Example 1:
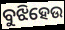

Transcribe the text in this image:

ବୁଝିହେଉ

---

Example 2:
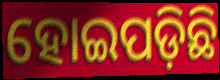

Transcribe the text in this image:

ହୋଇପଡ଼ିଛି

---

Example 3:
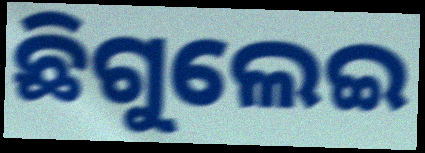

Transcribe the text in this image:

ଛିଗୁଲେଇ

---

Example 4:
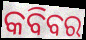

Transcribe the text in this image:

କବିବର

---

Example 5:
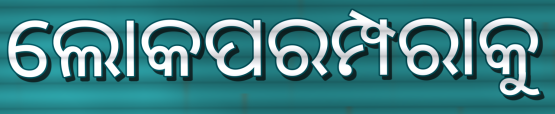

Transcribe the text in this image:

ଲୋକପରମ୍ପରାକୁ